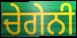
ਚੇਗੇਨੀ